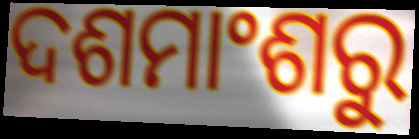
ଦଶମାଂଶରୁ